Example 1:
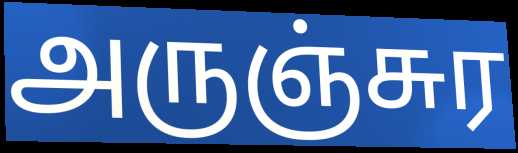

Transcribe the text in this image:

அருஞ்சுர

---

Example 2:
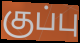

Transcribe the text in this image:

குப்பு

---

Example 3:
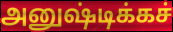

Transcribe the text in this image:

அனுஷ்டிக்கச்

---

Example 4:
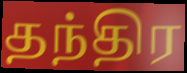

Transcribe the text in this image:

தந்திர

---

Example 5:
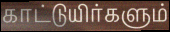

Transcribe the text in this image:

காட்டுயிர்களும்